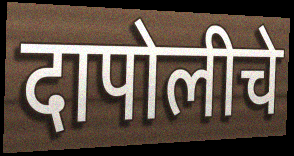
दापोलीचे